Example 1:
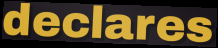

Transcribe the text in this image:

declares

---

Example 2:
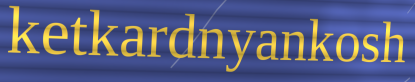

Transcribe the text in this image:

ketkardnyankosh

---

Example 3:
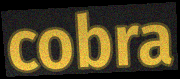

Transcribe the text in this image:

cobra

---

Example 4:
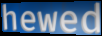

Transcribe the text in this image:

hewed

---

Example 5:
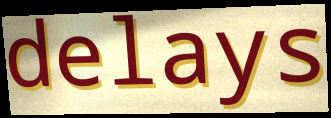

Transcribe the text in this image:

delays